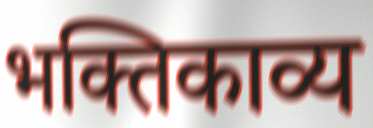
भक्तिकाव्य